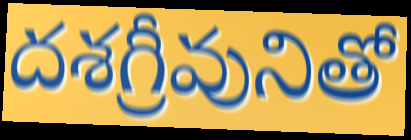
దశగ్రీవునితో